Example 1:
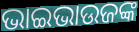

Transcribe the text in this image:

ଭାଇଭାଉଜଙ୍କ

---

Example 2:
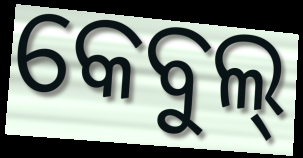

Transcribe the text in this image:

କେବୁଲ୍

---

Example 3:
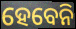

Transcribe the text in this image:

ହେବେନି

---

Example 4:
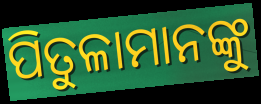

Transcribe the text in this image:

ପିତୁଳାମାନଙ୍କୁ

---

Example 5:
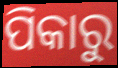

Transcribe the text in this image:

ପିକାରୁ